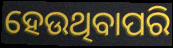
ହେଉଥିବାପରି